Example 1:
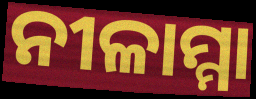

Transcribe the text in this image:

ନୀଳାମ୍ମା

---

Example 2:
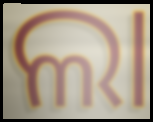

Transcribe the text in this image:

ଲା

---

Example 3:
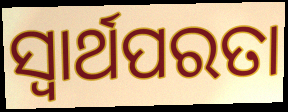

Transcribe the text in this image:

ସ୍ବାର୍ଥପରତା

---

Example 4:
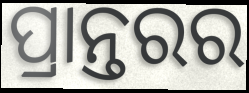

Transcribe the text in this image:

ପ୍ରାନ୍ତରର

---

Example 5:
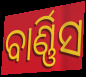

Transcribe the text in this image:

ବାର୍ଣ୍ଣିସ